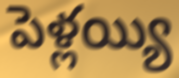
పెళ్లయ్యి